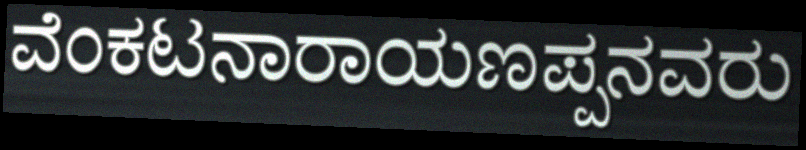
ವೆಂಕಟನಾರಾಯಣಪ್ಪನವರು